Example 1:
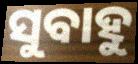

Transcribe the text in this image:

ସୁବାହୁ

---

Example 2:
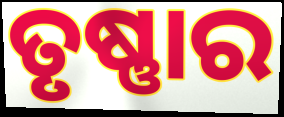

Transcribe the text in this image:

ତୃଷ୍ଣାର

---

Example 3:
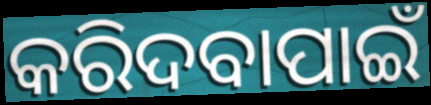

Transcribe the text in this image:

କରିଦବାପାଇଁ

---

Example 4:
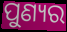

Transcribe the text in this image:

ପୁଣ୍ୟର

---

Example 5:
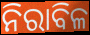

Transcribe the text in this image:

ନିରାବିଳ